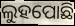
ଲୁହପୋଛି